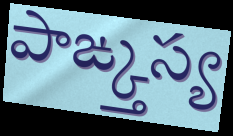
పాఙ్క్తస్య